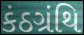
કંઠગ્રંથિ